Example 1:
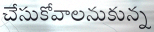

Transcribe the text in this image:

చేసుకోవాలనుకున్న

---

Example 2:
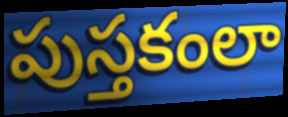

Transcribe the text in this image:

పుస్తకంలా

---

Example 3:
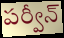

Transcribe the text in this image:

పర్వీన్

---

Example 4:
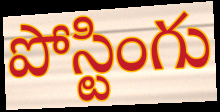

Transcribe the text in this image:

పోస్టింగు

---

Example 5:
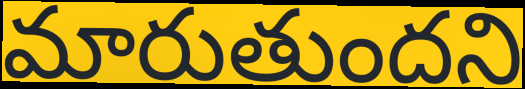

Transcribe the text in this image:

మారుతుందని